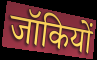
जॉकियों